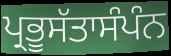
ਪ੍ਰਭੂਸੱਤਾਸੰਪੰਨ